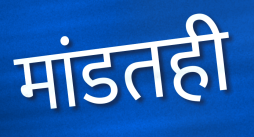
मांडतही